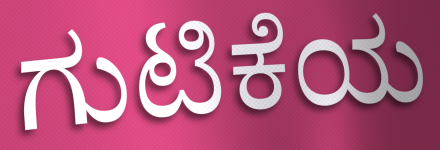
ಗುಟಿಕೆಯ